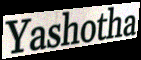
Yashotha